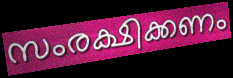
സംരക്ഷിക്കണം